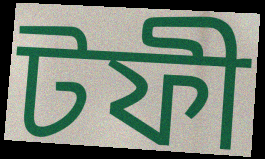
টফী